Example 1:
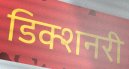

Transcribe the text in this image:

डिक्शनरी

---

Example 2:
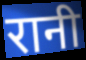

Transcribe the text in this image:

रानी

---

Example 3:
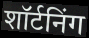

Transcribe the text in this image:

शॉर्टनिंग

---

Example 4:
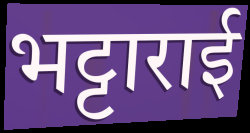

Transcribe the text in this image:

भट्टाराई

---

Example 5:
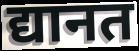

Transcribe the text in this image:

द्यानत